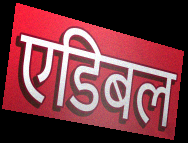
एडिबल